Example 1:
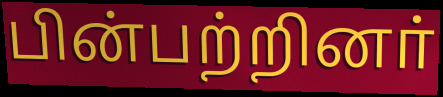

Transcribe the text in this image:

பின்பற்றினர்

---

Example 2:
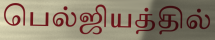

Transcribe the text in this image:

பெல்ஜியத்தில்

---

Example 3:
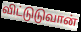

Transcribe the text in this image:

விட்டுடுவான்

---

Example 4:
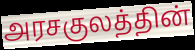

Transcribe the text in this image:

அரசகுலத்தின்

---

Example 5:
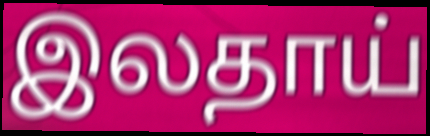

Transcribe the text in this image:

இலதாய்